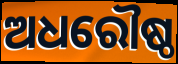
ଅଧରୌଷ୍ଠ